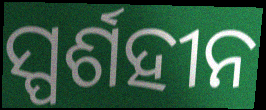
ସ୍ପର୍ଶହୀନ